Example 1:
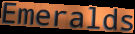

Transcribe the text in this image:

Emeralds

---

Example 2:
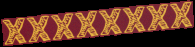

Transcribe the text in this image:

xxxxxxxx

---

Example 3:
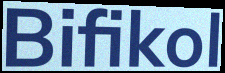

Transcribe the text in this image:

Bifikol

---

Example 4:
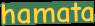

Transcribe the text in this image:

hamata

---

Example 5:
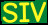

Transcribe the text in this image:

SIV